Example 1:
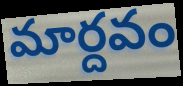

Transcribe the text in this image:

మార్దవం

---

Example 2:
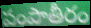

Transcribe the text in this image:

పంపాతీరం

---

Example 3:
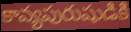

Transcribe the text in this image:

కావ్యపురుషుడికి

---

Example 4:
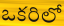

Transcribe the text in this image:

ఒకరిలో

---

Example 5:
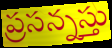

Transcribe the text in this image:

ప్రసన్నస్తు